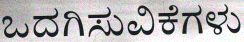
ಒದಗಿಸುವಿಕೆಗಳು